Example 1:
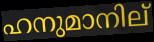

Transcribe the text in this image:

ഹനുമാനില്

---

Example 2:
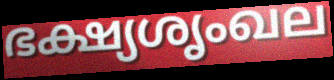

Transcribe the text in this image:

ഭക്ഷ്യശൃംഖല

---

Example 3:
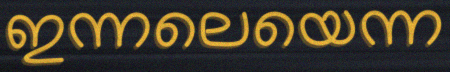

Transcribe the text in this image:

ഇന്നലെയെന്ന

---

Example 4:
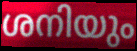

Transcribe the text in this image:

ശനിയും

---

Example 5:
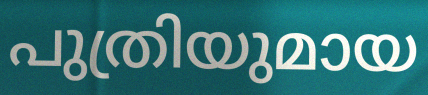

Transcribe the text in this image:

പുത്രിയുമായ